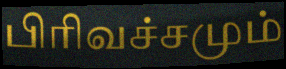
பிரிவச்சமும்